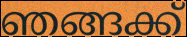
ഞങ്ങക്ക്